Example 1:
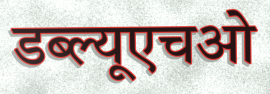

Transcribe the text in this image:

डब्ल्यूएचओ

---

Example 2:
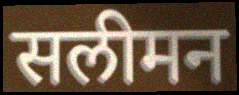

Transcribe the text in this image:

सलीमन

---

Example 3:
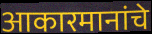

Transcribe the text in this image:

आकारमानांचे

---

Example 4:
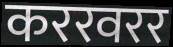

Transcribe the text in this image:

कररवरर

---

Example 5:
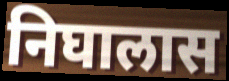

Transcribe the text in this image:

निघालास